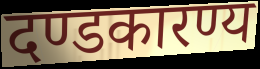
दण्डकारण्य